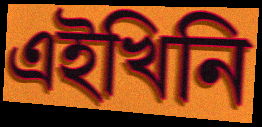
এইখিনি